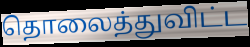
தொலைத்துவிட்ட